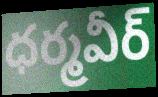
ధర్మవీర్